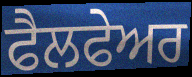
ਫੈਲਫੇਅਰ